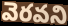
వెరవని